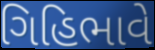
ગિહિભાવે